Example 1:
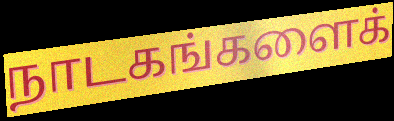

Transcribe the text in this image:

நாடகங்களைக்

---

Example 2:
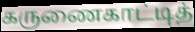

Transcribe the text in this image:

கருணைகாட்டித்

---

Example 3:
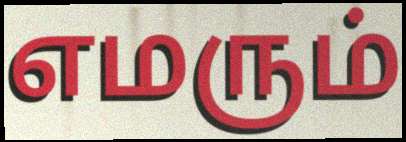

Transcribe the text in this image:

எமரும்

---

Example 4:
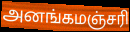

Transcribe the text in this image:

அனங்கமஞ்சரி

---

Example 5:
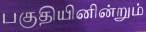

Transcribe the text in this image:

பகுதியினின்றும்